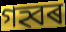
গহ্বৰ